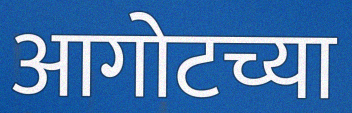
आगोटच्या